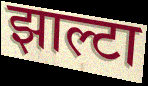
झाल्टा